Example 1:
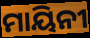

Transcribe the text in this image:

ମାୟିନୀ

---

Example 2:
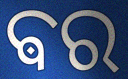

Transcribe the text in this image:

ଵର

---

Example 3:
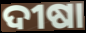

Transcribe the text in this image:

ଦୀଷା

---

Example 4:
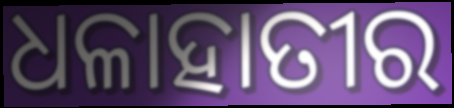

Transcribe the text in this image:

ଧଳାହାତୀର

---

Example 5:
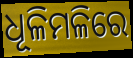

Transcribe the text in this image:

ଧୂଳିମଳିରେ